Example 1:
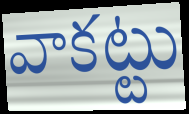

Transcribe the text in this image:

వాకట్టు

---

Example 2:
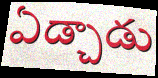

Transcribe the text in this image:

ఏడ్చాడు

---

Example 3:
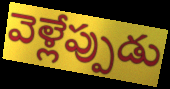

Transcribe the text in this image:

వెళ్లేప్పుడు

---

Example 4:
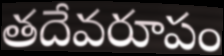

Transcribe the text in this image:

తదేవరూపం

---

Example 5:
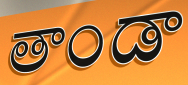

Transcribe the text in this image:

తాండా